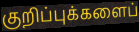
குறிப்புக்களைப்